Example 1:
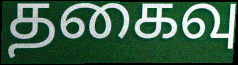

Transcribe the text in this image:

தகைவு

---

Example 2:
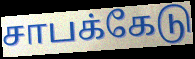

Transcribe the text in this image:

சாபக்கேடு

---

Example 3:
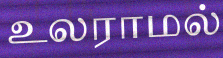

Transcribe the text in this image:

உலராமல்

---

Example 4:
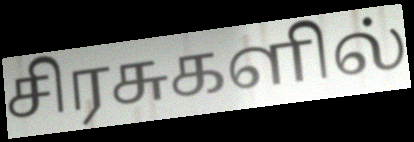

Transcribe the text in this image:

சிரசுகளில்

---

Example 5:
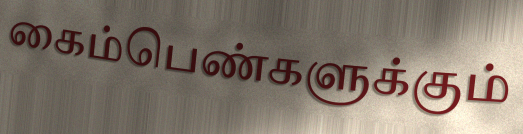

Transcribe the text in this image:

கைம்பெண்களுக்கும்